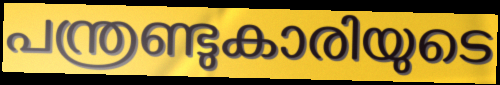
പന്ത്രണ്ടുകാരിയുടെ